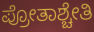
ಪ್ರೋತಾಶ್ಚೇತಿ